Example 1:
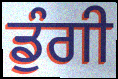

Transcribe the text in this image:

ਡੁੰਗੀ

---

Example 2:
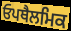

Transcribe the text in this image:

ਓਪਥੈਲਮਿਕ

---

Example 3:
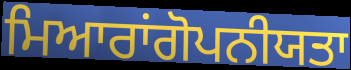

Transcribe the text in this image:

ਮਿਆਰਾਂਗੋਪਨੀਯਤਾ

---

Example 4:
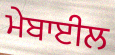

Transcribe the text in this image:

ਮੇਬਾਈਲ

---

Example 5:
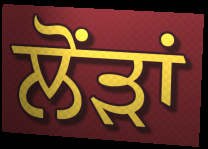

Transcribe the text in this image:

ਲੋਂੜਾਂ